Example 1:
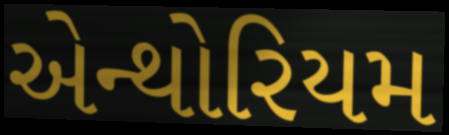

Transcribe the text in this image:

એન્થોરિયમ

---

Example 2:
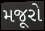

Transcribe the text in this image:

મજૂરો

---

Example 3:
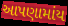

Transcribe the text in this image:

આપણામાંય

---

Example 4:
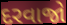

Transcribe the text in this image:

દરવાજો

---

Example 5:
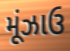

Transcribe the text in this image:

મૂંઝાઉ